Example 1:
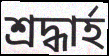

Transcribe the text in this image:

শ্রদ্ধার্হ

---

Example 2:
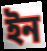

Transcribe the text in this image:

ইন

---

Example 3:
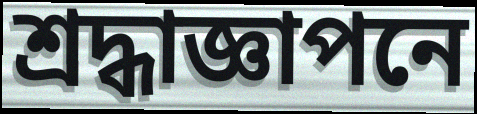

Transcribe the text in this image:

শ্রদ্ধাজ্ঞাপনে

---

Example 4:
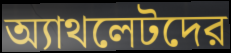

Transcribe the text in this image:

অ্যাথলেটদের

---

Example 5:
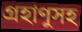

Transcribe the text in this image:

গ্রহাণুসহ